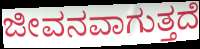
ಜೀವನವಾಗುತ್ತದೆ